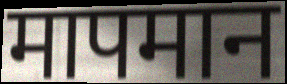
मापमान